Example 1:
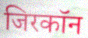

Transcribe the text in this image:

जिरकॉन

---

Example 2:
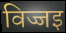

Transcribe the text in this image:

विज्जइ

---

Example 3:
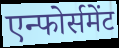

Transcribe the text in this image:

एन्फोर्समेंट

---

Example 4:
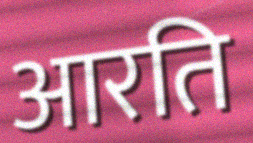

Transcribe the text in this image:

आरति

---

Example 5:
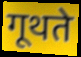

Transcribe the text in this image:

गूथते